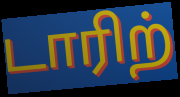
டாரிற்